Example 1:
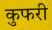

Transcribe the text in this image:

कुफरी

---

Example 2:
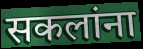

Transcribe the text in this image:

सकलांना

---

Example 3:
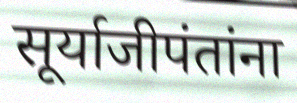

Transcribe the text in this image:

सूर्याजीपंतांना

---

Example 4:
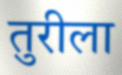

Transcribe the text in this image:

तुरीला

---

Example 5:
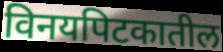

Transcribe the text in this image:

विनयपिटकातील